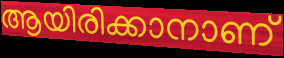
ആയിരിക്കാനാണ്